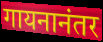
गायनानंतर